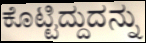
ಕೊಟ್ಟಿದ್ದುದನ್ನು